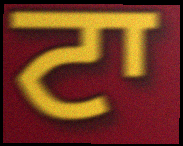
ਟਾ